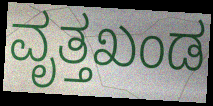
ವೃತ್ತಖಂಡ